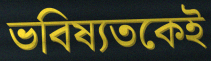
ভবিষ্যতকেই